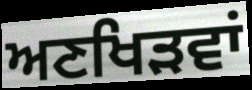
ਅਣਖਿੜਵਾਂ